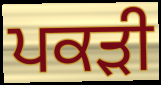
ਪਕੜੀ